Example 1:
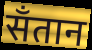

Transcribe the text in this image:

सँतान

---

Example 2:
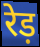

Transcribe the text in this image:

रेड़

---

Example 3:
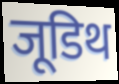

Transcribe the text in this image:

जूडिथ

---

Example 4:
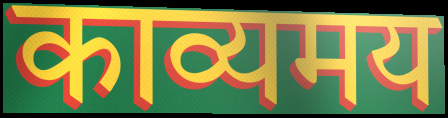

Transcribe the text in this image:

काव्यमय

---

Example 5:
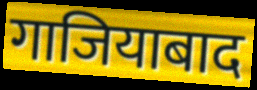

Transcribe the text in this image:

गाजियाबाद